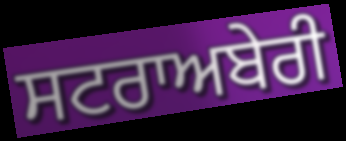
ਸਟਰਾਅਬੇਰੀ